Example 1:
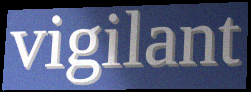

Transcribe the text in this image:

vigilant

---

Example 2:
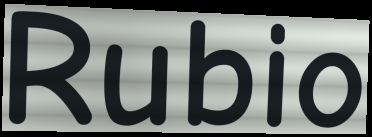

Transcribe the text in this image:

Rubio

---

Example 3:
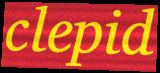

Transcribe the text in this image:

clepid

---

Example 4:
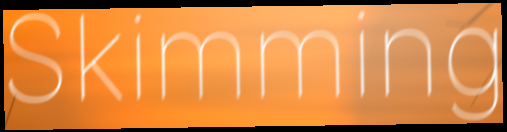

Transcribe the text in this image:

Skimming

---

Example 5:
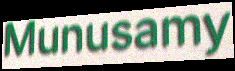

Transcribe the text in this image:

Munusamy